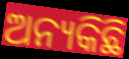
ଅନ୍ୟକିଛି